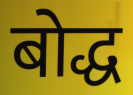
बोद्ध